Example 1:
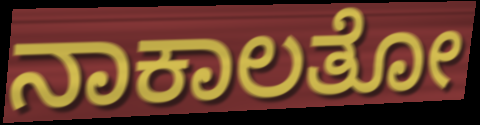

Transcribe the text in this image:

ನಾಕಾಲತೋ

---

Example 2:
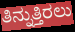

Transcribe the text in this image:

ತಿನ್ನುತ್ತಿರಲು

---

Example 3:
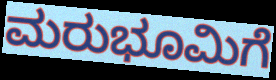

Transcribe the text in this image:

ಮರುಭೂಮಿಗೆ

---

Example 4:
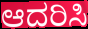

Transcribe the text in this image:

ಆದರಿಸಿ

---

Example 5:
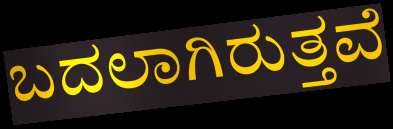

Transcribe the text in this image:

ಬದಲಾಗಿರುತ್ತವೆ